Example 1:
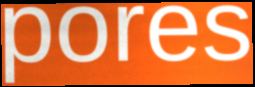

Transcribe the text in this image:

pores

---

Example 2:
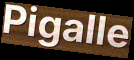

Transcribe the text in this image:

Pigalle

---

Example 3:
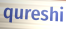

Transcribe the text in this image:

qureshi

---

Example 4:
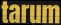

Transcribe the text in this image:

tarum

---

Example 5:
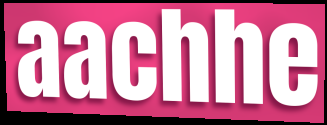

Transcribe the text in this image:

aachhe